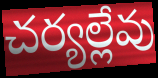
చర్యల్లేవు